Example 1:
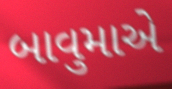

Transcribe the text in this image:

બાવુમાએ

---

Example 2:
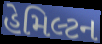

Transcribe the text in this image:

હેમિલ્ટન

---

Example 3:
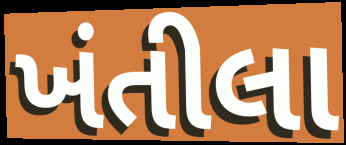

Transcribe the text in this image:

ખંતીલા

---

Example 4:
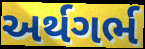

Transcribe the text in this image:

અર્થગર્ભ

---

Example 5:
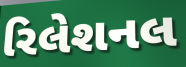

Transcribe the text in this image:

રિલેશનલ